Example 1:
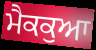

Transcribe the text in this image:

ਮੈਕਕੁਆ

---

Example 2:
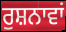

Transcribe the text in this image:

ਰੁਸ਼ਨਾਵਾਂ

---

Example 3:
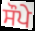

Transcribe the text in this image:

ਸੌਪੇ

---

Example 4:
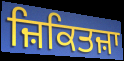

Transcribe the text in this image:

ਜ਼ਿਕਿਤਜ਼ਾ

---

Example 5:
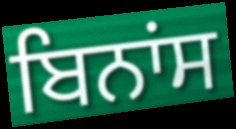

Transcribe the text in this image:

ਬਿਨਾਂਸ